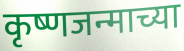
कृष्णजन्माच्या